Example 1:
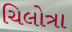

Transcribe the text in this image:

ચિલોત્રા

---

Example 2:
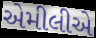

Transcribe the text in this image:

એમીલીએ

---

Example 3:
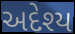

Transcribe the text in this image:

અદેશ્ય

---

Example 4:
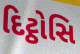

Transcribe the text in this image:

દિટ્ઠોસિ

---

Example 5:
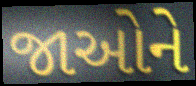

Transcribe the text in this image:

જાઓને